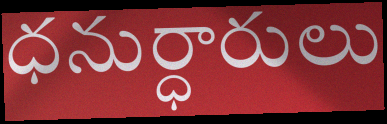
ధనుర్ధారులు